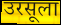
उरसूला